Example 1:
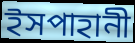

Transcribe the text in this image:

ইসপাহানী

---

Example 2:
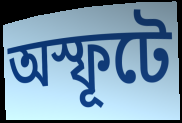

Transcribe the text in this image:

অস্ফূটে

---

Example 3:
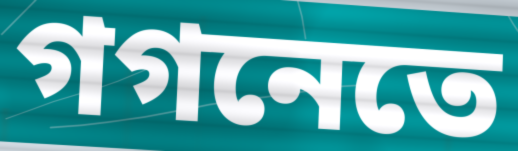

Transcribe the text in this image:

গগনেতে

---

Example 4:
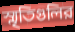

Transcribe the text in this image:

স্মৃতিগুলির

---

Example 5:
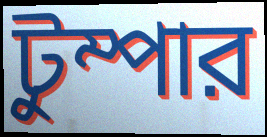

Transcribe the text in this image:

টুম্পার